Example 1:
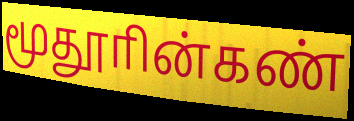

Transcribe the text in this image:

மூதூரின்கண்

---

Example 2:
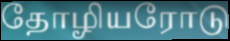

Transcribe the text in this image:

தோழியரோடு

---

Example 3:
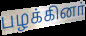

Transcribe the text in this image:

பழக்கினர்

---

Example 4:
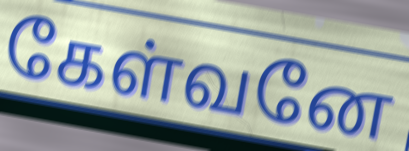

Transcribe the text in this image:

கேள்வனே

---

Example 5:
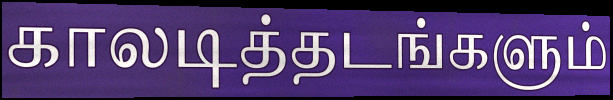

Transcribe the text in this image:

காலடித்தடங்களும்